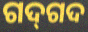
ଗଦ୍‌ଗଦ